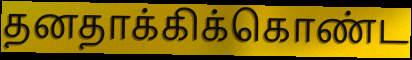
தனதாக்கிக்கொண்ட